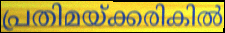
പ്രതിമയ്ക്കരികിൽ